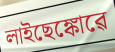
লাইছেঙ্কোৱে